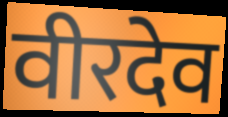
वीरदेव